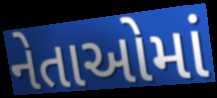
નેતાઓમાં